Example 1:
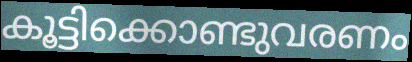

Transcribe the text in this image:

കൂട്ടിക്കൊണ്ടുവരണം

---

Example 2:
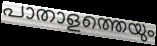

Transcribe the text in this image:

പാതാളത്തെയും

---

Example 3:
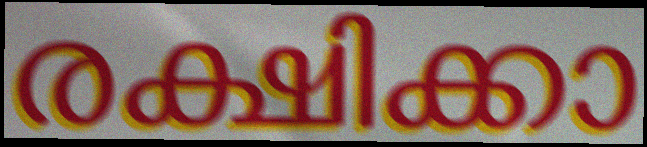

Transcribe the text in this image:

രക്ഷിക്കാ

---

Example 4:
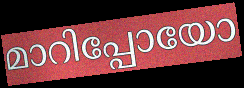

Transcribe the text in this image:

മാറിപ്പോയോ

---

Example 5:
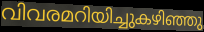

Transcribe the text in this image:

വിവരമറിയിച്ചുകഴിഞ്ഞു